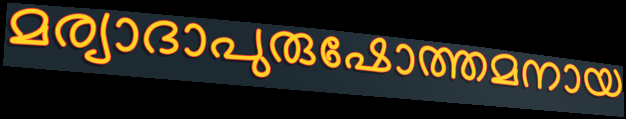
മര്യാദാപുരുഷോത്തമനായ